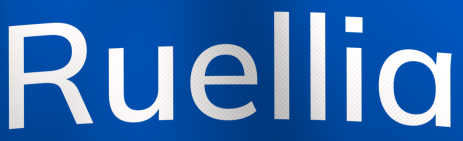
Ruellia